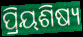
ପ୍ରିୟଶିଷ୍ୟ